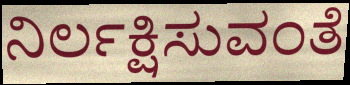
ನಿರ್ಲಕ್ಷಿಸುವಂತೆ